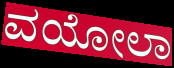
ವಯೋಲಾ